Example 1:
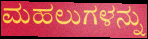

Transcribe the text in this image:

ಮಹಲುಗಳನ್ನು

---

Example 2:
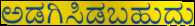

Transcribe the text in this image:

ಅಡಗಿಸಿಡಬಹುದು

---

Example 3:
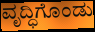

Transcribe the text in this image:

ವೃದ್ಧಿಗೊಂಡು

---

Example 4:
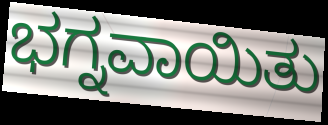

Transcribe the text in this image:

ಭಗ್ನವಾಯಿತು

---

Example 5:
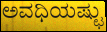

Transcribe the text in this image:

ಅವಧಿಯಷ್ಟು